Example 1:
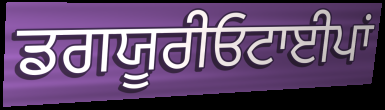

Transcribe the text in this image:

ਡਗਯੂਰੀਓਟਾਈਪਾਂ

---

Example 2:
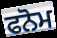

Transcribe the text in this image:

ਫਨੋਮ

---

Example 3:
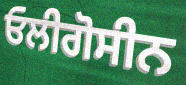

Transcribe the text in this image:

ਓਲੀਗੋਸੀਨ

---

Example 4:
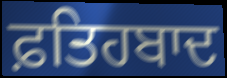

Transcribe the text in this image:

ਫ਼ਤਿਹਬਾਦ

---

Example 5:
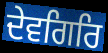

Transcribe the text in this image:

ਦੇਵਗਿਰਿ